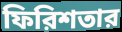
ফিরিশতার